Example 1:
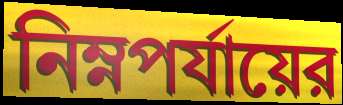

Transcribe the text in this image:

নিম্নপর্যায়ের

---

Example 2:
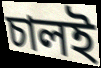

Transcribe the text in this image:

চালই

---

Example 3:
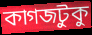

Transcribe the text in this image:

কাগজটুকু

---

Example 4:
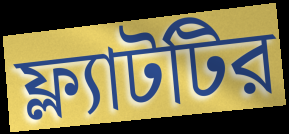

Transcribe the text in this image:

ফ্ল্যাটটির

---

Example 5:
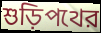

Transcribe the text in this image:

শুড়িপথের